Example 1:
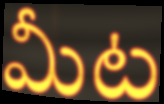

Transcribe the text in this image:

మీట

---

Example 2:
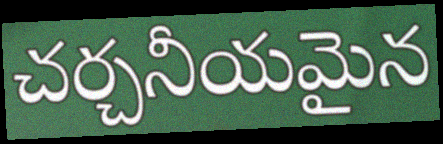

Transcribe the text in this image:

చర్చనీయమైన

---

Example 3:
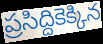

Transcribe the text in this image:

ప్రసిద్దికెక్కిన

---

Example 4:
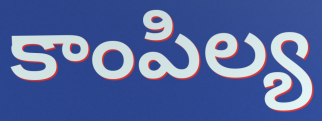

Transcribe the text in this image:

కాంపిల్య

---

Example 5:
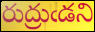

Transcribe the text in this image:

రుద్రుఁడని